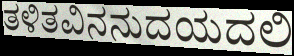
ತಳಿತವಿನನುದಯದಲಿ